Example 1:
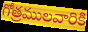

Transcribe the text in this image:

గోత్రములవారికి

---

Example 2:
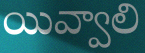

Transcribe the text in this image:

యివ్వాలి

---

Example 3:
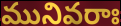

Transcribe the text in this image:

మునివరాః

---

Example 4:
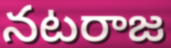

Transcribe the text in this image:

నటరాజ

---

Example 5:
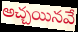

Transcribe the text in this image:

అచ్చయినవే